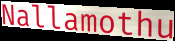
Nallamothu